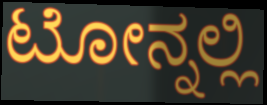
ಟೋನ್ನಲ್ಲಿ